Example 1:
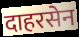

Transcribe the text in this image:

दाहरसेन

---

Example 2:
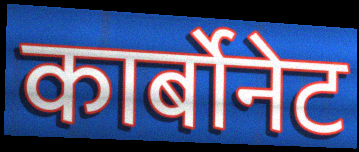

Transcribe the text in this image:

कार्बोनेट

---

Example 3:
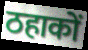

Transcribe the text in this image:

ठहाकों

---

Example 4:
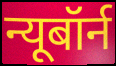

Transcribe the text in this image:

न्यूबॉर्न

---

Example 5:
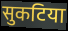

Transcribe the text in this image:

सुकटिया